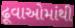
ઢૂવાઓમાંથી